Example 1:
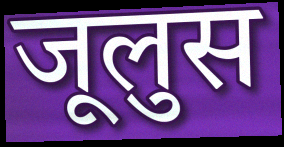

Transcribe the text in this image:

जूलुस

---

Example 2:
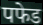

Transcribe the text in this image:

पफेड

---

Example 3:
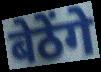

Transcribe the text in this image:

बेठेंगे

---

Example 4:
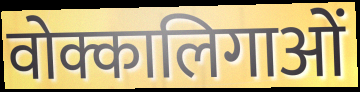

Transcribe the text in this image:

वोक्कालिगाओं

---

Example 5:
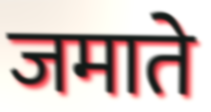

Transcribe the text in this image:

जमाते